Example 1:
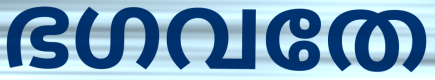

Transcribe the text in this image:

ഭഗവതേ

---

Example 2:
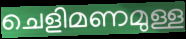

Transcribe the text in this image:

ചെളിമണമുള്ള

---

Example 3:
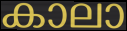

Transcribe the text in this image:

കാലാ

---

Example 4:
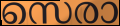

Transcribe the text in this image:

സെരാ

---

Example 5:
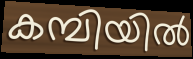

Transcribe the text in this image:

കമ്പിയിൽ